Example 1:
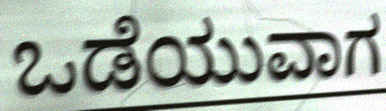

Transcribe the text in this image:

ಒಡೆಯುವಾಗ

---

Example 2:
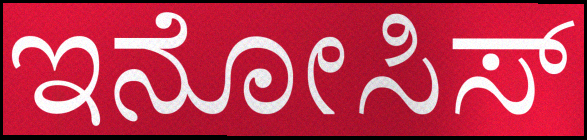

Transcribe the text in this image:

ಇನೋಸಿಸ್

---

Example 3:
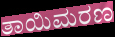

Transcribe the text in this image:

ತಾಯಿಮರಣ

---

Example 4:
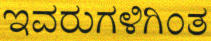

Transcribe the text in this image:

ಇವರುಗಳಿಗಿಂತ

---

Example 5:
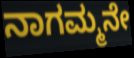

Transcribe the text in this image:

ನಾಗಮ್ಮನೇ